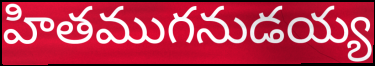
హితముగనుడయ్య